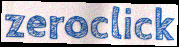
zeroclick